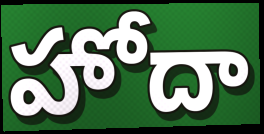
హోదా